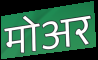
मोअर